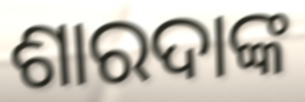
ଶାରଦାଙ୍କ